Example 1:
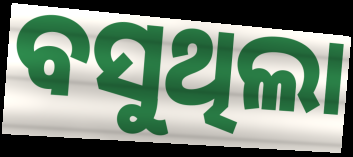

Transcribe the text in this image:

ବସୁଥିଲା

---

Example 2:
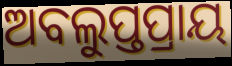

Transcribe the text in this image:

ଅବଲୁପ୍ତପ୍ରାୟ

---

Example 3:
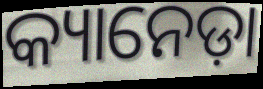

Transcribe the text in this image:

କ୍ୟାନେଡ଼ା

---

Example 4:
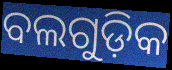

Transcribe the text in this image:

ବଲଗୁଡ଼ିକ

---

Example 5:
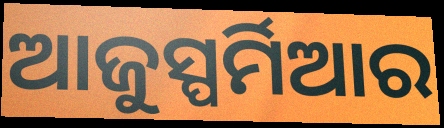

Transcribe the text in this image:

ଆଜୁସ୍ପର୍ମିଆର